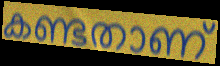
കണ്ടതാണ്